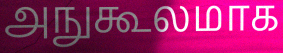
அநுகூலமாக